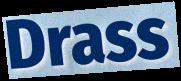
Drass